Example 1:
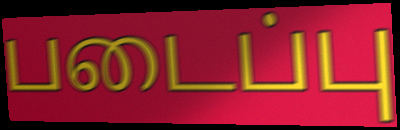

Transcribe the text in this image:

படைப்பு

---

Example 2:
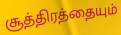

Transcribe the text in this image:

சூத்திரத்தையும்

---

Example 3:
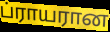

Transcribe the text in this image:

ப்ராயரான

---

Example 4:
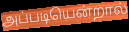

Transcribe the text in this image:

அப்படியென்றால்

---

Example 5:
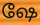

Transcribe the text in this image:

ஷே